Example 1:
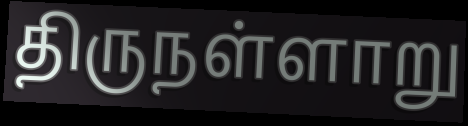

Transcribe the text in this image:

திருநள்ளாறு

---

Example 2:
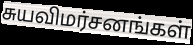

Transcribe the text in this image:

சுயவிமர்சனங்கள்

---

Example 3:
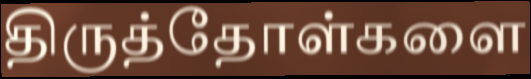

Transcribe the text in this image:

திருத்தோள்களை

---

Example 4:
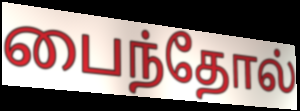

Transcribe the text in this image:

பைந்தோல்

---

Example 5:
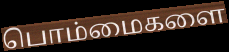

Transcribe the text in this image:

பொம்மைகளை